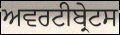
ਅਵਰਟੀਬ੍ਰੇਟਸ